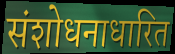
संशोधनाधारित